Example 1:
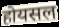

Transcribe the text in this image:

होयसल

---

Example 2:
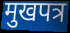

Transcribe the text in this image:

मुखपत्र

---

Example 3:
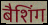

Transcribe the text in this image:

बैशिंग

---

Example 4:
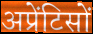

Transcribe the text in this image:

अप्रेंटिसों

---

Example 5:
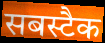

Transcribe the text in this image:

सबस्टैक